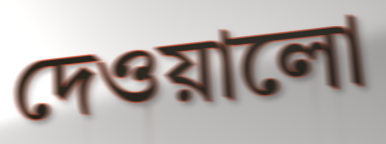
দেওয়ালো